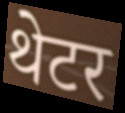
थेटर